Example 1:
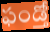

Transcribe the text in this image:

ఫండ్తో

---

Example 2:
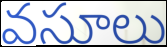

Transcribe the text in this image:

వసూలు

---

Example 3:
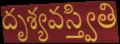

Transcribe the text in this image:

దృశ్యవస్త్వితి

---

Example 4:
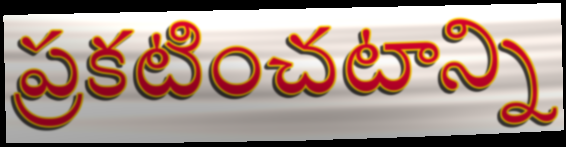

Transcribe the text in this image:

ప్రకటించటాన్ని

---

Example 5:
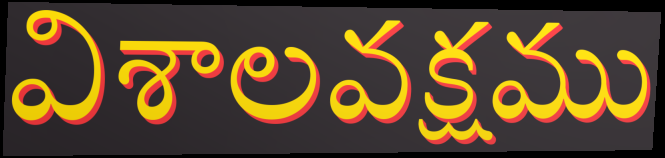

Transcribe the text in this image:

విశాలవక్షము